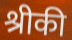
श्रीकी